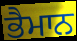
ਭੈਮਾਨ